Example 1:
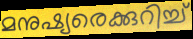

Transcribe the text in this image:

മനുഷ്യരെക്കുറിച്ച്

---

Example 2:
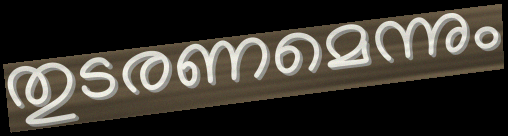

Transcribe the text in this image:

തുടരണമെന്നും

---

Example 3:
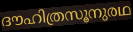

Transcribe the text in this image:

ദൗഹിത്രസൂനുരഥ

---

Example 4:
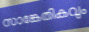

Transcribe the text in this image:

സാങ്കേതികവും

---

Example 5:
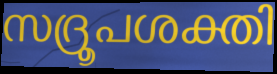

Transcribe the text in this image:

സദ്രൂപശക്തി